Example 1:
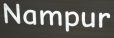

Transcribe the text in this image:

Nampur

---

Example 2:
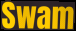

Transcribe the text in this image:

Swam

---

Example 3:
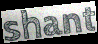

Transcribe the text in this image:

shant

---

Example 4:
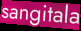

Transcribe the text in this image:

sangitala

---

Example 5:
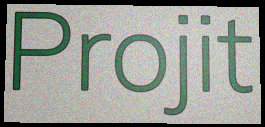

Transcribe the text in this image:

Projit